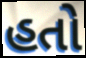
હતો